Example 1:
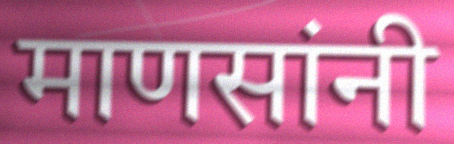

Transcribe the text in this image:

माणसांनी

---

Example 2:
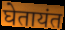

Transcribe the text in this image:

घेतायंत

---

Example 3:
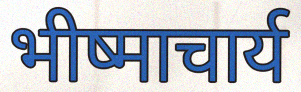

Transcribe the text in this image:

भीष्माचार्य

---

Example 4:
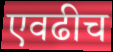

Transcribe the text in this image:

एवढीच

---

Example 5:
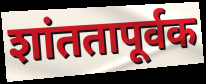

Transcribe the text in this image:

शांततापूर्वक